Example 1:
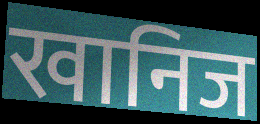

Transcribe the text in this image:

खानिज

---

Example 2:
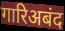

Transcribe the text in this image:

गारिअबंद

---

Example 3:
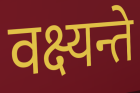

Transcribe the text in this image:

वक्ष्यन्ते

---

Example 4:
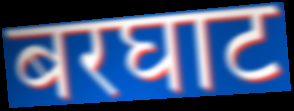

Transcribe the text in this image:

बरघाट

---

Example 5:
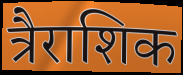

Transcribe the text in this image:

त्रैराशिक